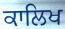
ਕਾਲਿਖ